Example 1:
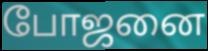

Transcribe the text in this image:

போஜனை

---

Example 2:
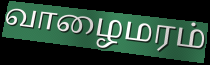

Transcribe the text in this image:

வாழைமரம்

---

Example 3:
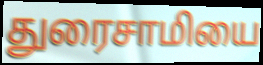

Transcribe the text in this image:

துரைசாமியை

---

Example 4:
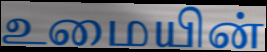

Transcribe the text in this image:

உமையின்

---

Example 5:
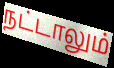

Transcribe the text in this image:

நட்டாலும்